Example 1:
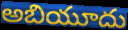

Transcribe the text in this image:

అబియూదు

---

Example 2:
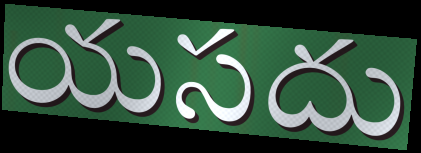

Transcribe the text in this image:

యసదు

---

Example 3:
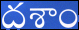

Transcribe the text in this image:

దశాం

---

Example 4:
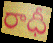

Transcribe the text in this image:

రాధీ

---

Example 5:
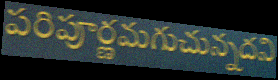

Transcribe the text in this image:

పరిపూర్ణమగుచున్నదని